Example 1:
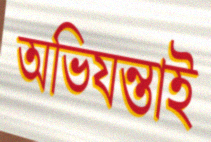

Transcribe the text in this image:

অভিযন্তাই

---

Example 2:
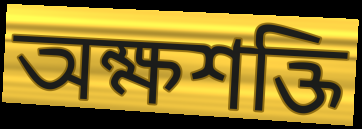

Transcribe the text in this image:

অক্ষশক্তি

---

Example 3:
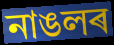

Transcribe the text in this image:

নাঙলৰ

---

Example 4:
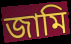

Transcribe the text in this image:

জামি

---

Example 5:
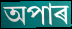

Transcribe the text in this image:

অপাৰ